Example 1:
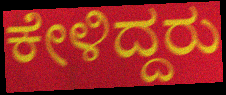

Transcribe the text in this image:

ಕೇಳಿದ್ದರು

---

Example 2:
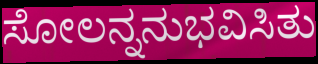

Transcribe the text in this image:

ಸೋಲನ್ನನುಭವಿಸಿತು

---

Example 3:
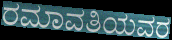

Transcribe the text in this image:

ರಮಾವತಿಯವರ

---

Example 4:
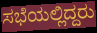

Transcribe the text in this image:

ಸಭೆಯಲ್ಲಿದ್ದರು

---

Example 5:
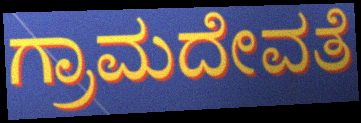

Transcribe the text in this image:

ಗ್ರಾಮದೇವತೆ